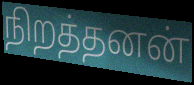
நிறத்தனன்